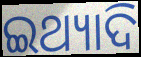
ଇଥ୍ୟାଦି